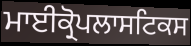
ਮਾਈਕ੍ਰੋਪਲਾਸਟਿਕਸ